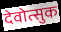
देवोत्सुक